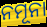
ନମୂନା